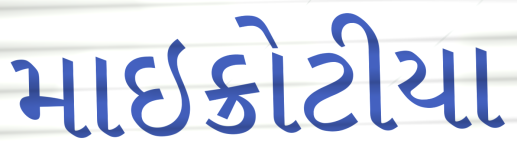
માઇક્રોટીયા